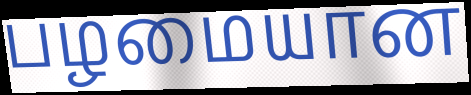
பழமையான